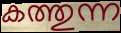
കത്തുന്ന